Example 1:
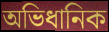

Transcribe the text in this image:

অভিধানিক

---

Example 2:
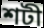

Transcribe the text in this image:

শটী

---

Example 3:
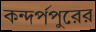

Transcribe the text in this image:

কন্দর্পপুরের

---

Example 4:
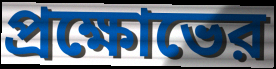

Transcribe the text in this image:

প্রক্ষোভের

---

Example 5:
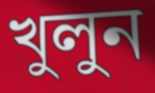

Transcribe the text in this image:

খুলুন